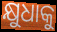
କ୍ଷୁଧାକୁ